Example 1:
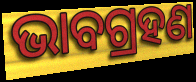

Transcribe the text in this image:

ଭାବଗ୍ରହଣ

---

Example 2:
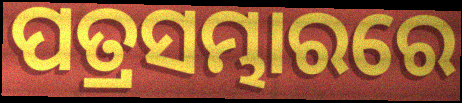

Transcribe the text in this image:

ପତ୍ରସମ୍ଭାରରେ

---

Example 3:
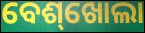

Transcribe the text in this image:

ବେଶ୍‌ଖୋଲା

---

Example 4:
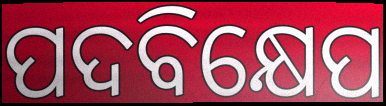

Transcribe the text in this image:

ପଦବିକ୍ଷେପ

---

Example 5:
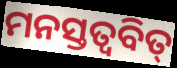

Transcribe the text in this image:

ମନସ୍ତତ୍ଵବିତ୍